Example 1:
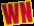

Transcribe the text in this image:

WN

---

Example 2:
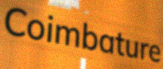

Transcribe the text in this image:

Coimbature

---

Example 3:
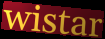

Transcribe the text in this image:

wistar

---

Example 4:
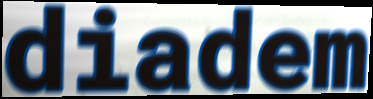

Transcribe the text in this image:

diadem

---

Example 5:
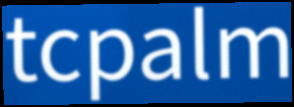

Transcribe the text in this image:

tcpalm